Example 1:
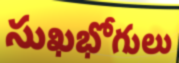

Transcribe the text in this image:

సుఖభోగులు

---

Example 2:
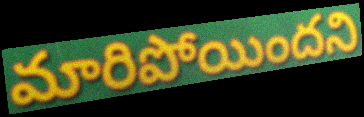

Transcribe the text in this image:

మారిపోయిందని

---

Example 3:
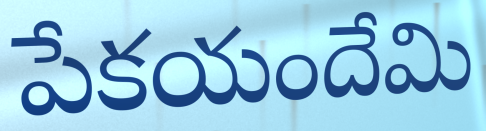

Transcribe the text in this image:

పేకయందేమి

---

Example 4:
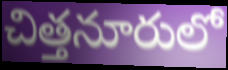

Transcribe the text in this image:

చిత్తనూరులో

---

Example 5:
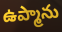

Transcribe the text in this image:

ఉప్మాను